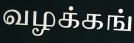
வழக்கங்